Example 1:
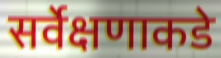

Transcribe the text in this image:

सर्वेक्षणाकडे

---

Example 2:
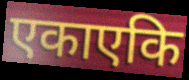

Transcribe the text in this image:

एकाएकि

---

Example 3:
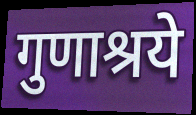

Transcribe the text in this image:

गुणाश्रये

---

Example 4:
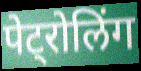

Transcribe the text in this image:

पेट्रोलिंग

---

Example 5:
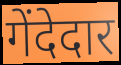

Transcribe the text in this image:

गेंदेदार